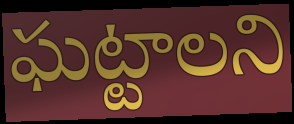
ఘట్టాలని